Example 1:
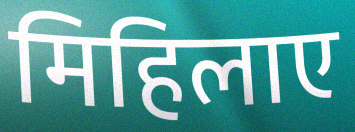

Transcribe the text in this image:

मिहिलाए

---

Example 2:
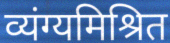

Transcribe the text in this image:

व्यंग्यमिश्रित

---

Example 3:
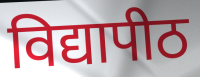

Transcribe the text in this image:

विद्यापीठ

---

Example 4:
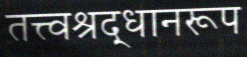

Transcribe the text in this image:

तत्त्वश्रद्धानरूप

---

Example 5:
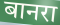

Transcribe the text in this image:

बानरा